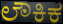
ಲೌಕಿಕ